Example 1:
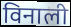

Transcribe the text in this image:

विनाली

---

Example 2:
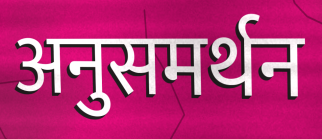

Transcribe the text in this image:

अनुसमर्थन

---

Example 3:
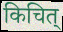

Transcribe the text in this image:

किचित्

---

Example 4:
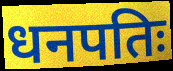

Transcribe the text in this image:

धनपतिः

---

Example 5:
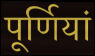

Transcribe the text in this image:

पूर्णियां